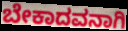
ಬೇಕಾದವನಾಗಿ